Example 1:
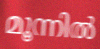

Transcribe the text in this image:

മൂന്നിൽ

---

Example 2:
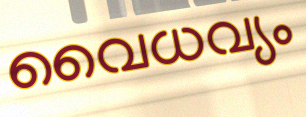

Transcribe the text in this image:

വൈധവ്യം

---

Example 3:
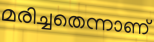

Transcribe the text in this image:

മരിച്ചതെന്നാണ്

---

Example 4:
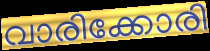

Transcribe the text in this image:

വാരിക്കോരി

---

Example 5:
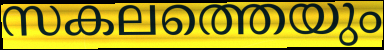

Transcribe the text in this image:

സകലത്തെയും